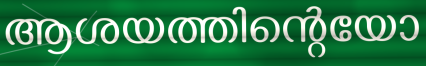
ആശയത്തിന്റെയോ